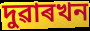
দুৱাৰখন